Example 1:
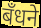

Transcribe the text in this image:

बँधने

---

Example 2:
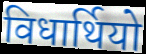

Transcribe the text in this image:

विधार्थियो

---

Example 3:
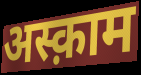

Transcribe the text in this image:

अस्क़ाम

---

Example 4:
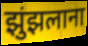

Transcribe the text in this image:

झुंझलाना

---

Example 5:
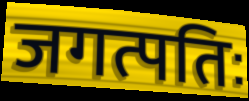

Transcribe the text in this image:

जगत्पतिः